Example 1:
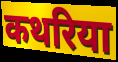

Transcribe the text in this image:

कथरिया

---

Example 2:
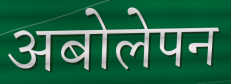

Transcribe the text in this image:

अबोलेपन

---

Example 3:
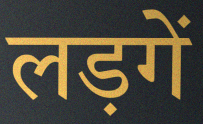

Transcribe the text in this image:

लड़गें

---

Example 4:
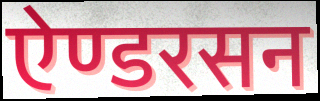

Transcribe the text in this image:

ऐण्डरसन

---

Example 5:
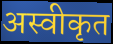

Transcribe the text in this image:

अस्वीकृत